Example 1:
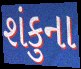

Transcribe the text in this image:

શંકુના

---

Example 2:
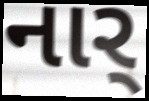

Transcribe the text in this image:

નાર્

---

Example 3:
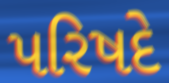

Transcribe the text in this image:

પરિષદે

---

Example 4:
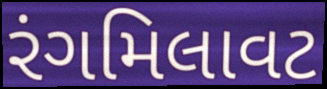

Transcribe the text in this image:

રંગમિલાવટ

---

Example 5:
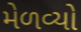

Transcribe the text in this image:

મેળવ્યો